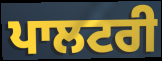
ਪਾਲਟਰੀ